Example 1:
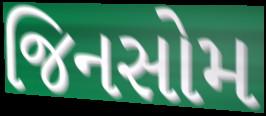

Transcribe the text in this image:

જિનસોમ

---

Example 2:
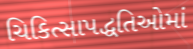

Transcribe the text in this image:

ચિકિત્સાપદ્ધતિઓમાં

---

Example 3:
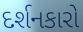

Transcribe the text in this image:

દર્શનકારો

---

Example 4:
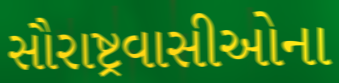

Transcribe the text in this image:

સૌરાષ્ટ્રવાસીઓના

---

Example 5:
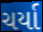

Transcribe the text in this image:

ચર્યા